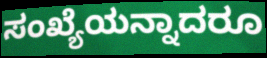
ಸಂಖ್ಯೆಯನ್ನಾದರೂ